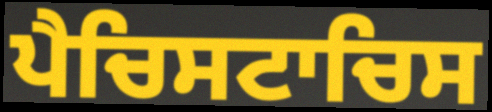
ਪੈਚਿਸਟਾਚਿਸ